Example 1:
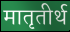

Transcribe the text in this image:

मातृतीर्थ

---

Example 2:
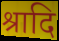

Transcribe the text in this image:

श्रादि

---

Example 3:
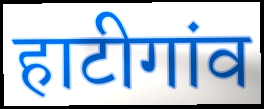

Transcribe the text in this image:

हाटीगांव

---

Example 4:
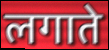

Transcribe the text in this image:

लगाते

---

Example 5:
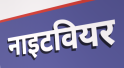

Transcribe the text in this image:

नाइटवियर